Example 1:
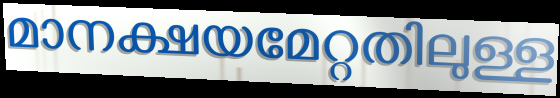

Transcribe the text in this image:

മാനക്ഷയമേറ്റതിലുള്ള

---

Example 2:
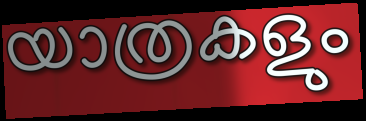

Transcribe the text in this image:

യാത്രകളും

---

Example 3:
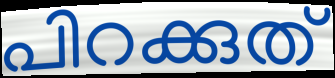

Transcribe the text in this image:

പിറക്കുത്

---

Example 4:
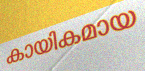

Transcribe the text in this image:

കായികമായ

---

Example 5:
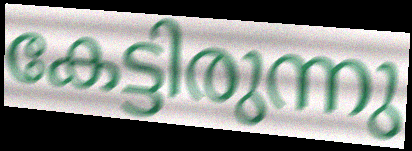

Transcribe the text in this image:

കേട്ടിരുന്നു